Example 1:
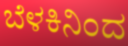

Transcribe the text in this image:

ಬೆಳಕಿನಿಂದ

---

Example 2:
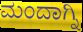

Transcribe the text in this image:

ಮಂದಾಗ್ನಿ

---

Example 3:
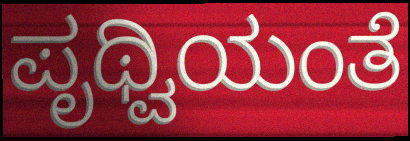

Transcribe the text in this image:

ಪೃಥ್ವಿಯಂತೆ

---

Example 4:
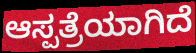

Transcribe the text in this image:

ಆಸ್ಪತ್ರೆಯಾಗಿದೆ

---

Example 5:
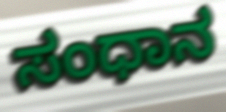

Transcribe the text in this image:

ಸಂಧಾನ